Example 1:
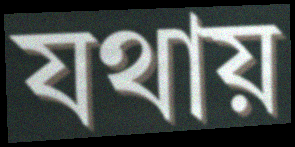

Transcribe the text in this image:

যথায়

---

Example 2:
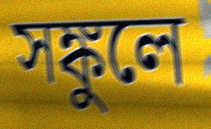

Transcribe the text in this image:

সঙ্কুলে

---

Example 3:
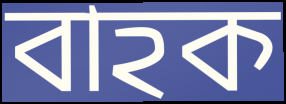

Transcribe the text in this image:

বাহক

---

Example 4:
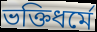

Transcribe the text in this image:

ভক্তিধর্মে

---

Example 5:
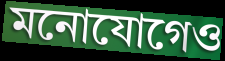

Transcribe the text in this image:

মনোযোগেও